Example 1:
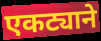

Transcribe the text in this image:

एकट्याने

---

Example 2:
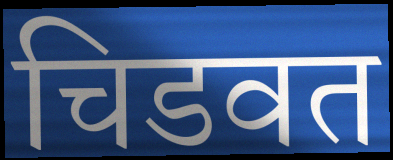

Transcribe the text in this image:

चिडवत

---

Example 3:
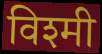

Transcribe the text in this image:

विश्मी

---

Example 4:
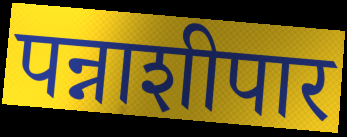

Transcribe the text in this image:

पन्नाशीपार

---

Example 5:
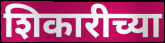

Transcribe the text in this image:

शिकारीच्या